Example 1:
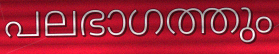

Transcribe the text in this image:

പലഭാഗത്തും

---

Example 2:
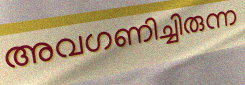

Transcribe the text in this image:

അവഗണിച്ചിരുന്ന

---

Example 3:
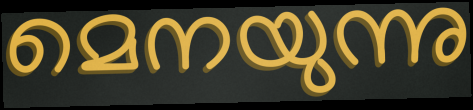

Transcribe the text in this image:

മെനയുന്നു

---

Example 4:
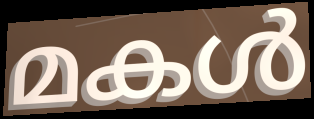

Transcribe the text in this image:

മകൾ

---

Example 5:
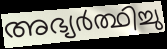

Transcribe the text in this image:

അഭ്യർത്ഥിച്ചു